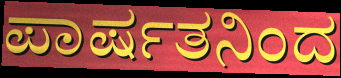
ಪಾರ್ಷತನಿಂದ